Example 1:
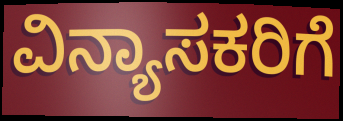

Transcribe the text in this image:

ವಿನ್ಯಾಸಕರಿಗೆ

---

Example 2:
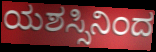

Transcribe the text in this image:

ಯಶಸ್ಸಿನಿಂದ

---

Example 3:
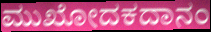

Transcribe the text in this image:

ಮುಖೋದಕದಾನಂ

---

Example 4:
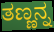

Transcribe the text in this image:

ತಣ್ಣನ್ನ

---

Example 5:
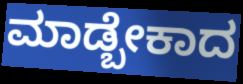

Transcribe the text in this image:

ಮಾಡ್ಬೇಕಾದ